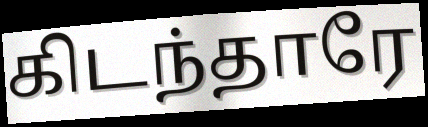
கிடந்தாரே